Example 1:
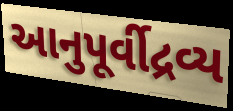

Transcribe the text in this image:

આનુપૂર્વીદ્રવ્ય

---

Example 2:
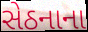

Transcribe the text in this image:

સેઠનાના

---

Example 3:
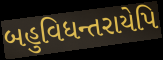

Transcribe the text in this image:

બહુવિધન્તરાયેપિ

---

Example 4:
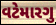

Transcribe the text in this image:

વટેમારગુ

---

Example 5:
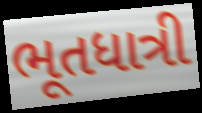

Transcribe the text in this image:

ભૂતધાત્રી